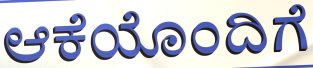
ಆಕೆಯೊಂದಿಗೆ